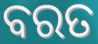
ବରତ